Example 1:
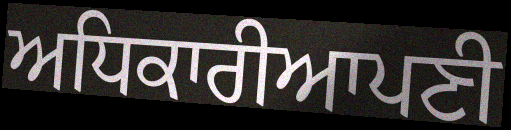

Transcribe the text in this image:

ਅਧਿਕਾਰੀਆਪਣੀ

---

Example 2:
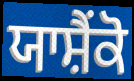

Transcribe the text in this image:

ਯਾਸ਼ੈਂਕੋ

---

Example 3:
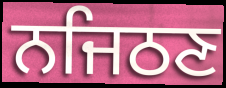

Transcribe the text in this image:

ਨਜਿਠਣ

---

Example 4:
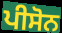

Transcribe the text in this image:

ਪੀਸੋਨ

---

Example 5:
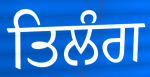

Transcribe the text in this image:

ਤਿਲੰਗ